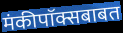
मंकीपॉक्सबाबत